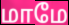
மாமே